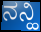
ನನ್ಹಿ